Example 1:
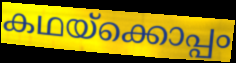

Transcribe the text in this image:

കഥയ്ക്കൊപ്പം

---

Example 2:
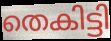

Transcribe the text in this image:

തെകിട്ടി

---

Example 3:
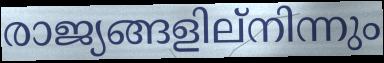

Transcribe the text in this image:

രാജ്യങ്ങളില്നിന്നും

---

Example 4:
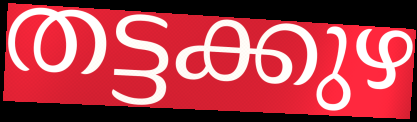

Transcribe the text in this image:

തട്ടക്കുഴ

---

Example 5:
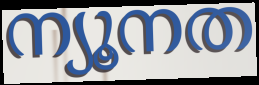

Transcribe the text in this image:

ന്യൂനത